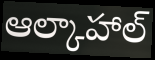
ఆల్కాహాల్